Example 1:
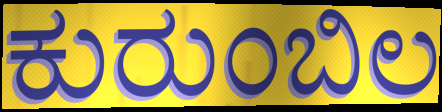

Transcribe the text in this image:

ಕುರುಂಬಿಲ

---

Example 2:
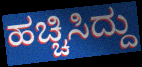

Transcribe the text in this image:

ಹಚ್ಚಿಸಿದ್ದು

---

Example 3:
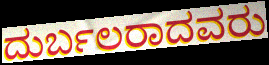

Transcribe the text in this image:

ದುರ್ಬಲರಾದವರು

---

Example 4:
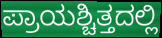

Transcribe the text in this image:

ಪ್ರಾಯಶ್ಚಿತ್ತದಲ್ಲಿ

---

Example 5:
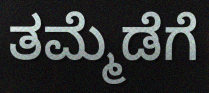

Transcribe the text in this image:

ತಮ್ಮೆಡೆಗೆ